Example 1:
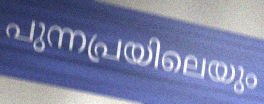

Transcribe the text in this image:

പുന്നപ്രയിലെയും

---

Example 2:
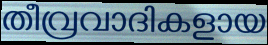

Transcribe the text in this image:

തീവ്രവാദികളായ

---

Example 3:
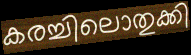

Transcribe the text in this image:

കരച്ചിലൊതുക്കി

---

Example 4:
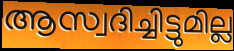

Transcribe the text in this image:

ആസ്വദിച്ചിട്ടുമില്ല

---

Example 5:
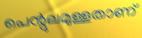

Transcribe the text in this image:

പെന്റുലമുള്ളതാണ്